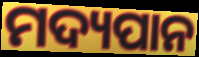
ମଦ୍ୟପାନ